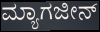
ಮ್ಯಾಗಜೀನ್